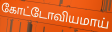
கோட்டோவியமாய்